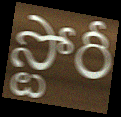
స్టోరీ